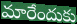
మారేందుకు